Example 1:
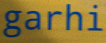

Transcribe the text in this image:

garhi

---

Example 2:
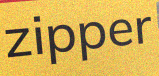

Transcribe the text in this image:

zipper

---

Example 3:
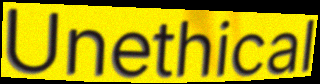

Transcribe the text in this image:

Unethical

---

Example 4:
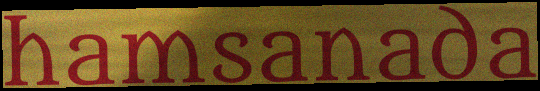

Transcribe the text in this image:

hamsanada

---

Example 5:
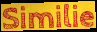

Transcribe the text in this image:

Similie